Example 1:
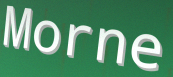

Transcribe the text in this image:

Morne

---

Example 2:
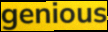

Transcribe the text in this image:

genious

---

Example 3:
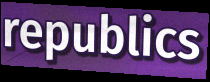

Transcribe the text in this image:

republics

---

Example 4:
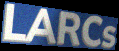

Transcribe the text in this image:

LARCs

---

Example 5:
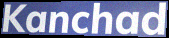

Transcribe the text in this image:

Kanchad